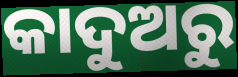
କାଦୁଅରୁ